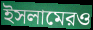
ইসলামেরও